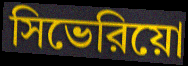
সিভেরিয়ো